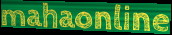
mahaonline